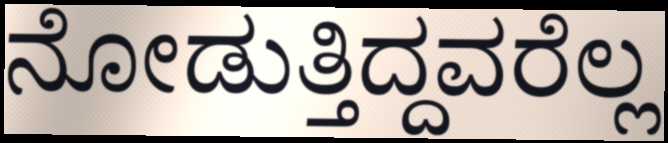
ನೋಡುತ್ತಿದ್ದವರೆಲ್ಲ